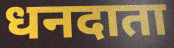
धनदाता